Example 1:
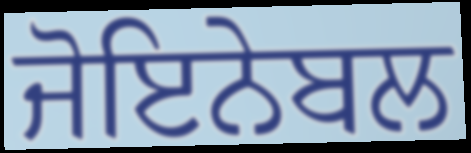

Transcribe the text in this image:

ਜੋਇਨੇਬਲ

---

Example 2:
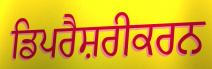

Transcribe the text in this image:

ਡਿਪਰੈਸ਼ਰੀਕਰਨ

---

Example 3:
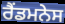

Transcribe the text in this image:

ਰੈਂਡਮਨੇਸ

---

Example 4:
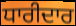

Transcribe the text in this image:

ਧਾਰੀਦਾਰ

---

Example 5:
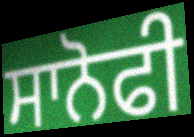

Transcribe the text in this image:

ਸਾਨੋਫੀ